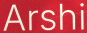
Arshi